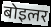
बोइलर